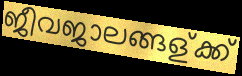
ജീവജാലങ്ങള്ക്ക്